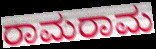
ರಾಮರಾಮ